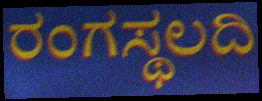
ರಂಗಸ್ಥಲದಿ